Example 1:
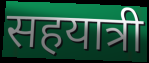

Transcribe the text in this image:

सहयात्री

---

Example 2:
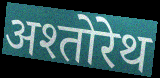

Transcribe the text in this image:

अश्तोरेथ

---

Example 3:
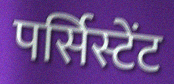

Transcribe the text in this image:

पर्सिस्टेंट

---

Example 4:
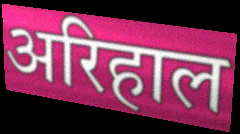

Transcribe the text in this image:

अरिहाल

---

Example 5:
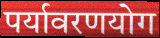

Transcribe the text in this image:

पर्यावरणयोग